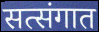
सत्संगात